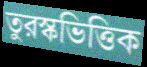
তুরস্কভিত্তিক